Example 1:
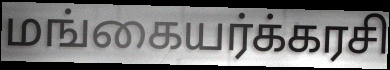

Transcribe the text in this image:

மங்கையர்க்கரசி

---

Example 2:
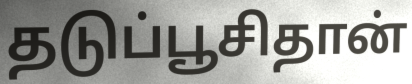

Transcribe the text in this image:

தடுப்பூசிதான்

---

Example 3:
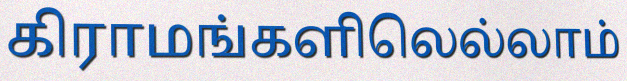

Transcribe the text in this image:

கிராமங்களிலெல்லாம்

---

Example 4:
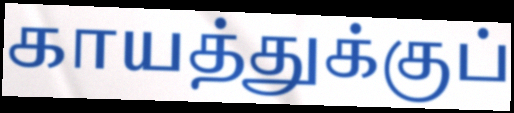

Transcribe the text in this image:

காயத்துக்குப்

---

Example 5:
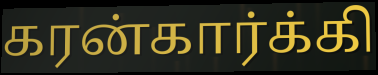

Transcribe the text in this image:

கரன்கார்க்கி